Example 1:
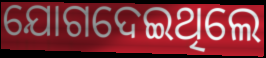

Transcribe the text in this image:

ଯୋଗଦେଇଥିଲେ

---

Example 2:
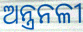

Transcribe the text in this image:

ଅନ୍ତ୍ରନଳୀ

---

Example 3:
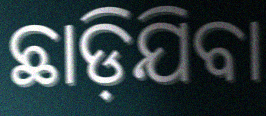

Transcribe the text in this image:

ଛାଡ଼ିଯିବା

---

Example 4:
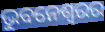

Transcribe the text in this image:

ଭୁବନେଶ୍ବରର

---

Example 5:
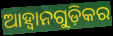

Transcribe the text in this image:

ଆହ୍ୱାନଗୁଡ଼ିକର